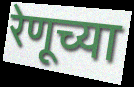
रेणूच्या